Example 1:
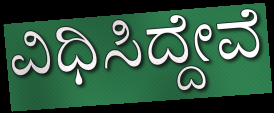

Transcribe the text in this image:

ವಿಧಿಸಿದ್ದೇವೆ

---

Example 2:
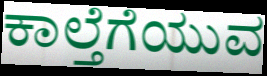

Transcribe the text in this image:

ಕಾಲ್ತೆಗೆಯುವ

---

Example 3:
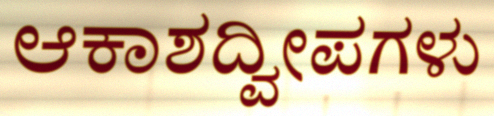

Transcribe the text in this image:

ಆಕಾಶದ್ವೀಪಗಳು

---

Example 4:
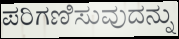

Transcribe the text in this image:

ಪರಿಗಣಿಸುವುದನ್ನು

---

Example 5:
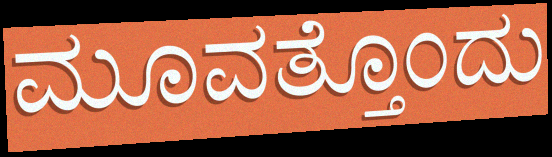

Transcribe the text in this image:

ಮೂವತ್ತೊಂದು